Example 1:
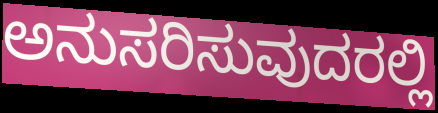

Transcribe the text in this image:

ಅನುಸರಿಸುವುದರಲ್ಲಿ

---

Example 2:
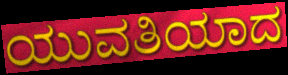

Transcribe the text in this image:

ಯುವತಿಯಾದ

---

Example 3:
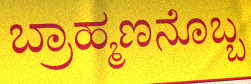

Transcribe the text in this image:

ಬ್ರಾಹ್ಮಣನೊಬ್ಬ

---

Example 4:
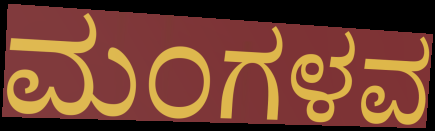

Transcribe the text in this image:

ಮಂಗಳವ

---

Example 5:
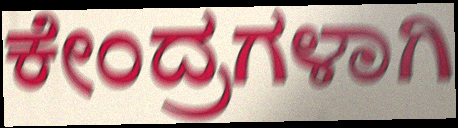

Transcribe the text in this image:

ಕೇಂದ್ರಗಳಾಗಿ